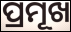
ପ୍ରମୂଖ